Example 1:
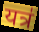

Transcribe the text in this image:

यत्र॑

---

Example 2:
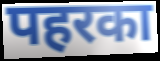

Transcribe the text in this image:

पहरका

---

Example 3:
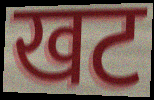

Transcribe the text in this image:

खट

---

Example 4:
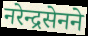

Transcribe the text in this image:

नरेन्द्रसेनने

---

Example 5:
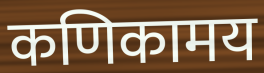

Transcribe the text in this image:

कणिकामय